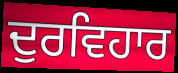
ਦੁਰਵਿਹਾਰ